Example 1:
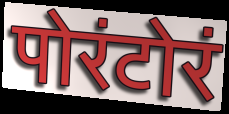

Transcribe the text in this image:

पोरंटोरं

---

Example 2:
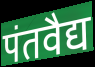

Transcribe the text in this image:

पंतवैद्य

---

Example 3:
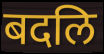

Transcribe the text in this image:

बदलि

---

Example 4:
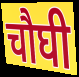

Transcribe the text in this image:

चौघी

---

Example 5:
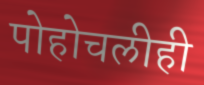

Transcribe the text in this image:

पोहोचलीही